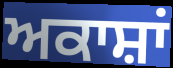
ਅਕਾਸ਼ਾਂ